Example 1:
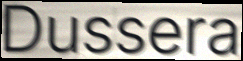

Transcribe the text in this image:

Dussera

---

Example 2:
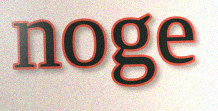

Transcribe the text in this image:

noge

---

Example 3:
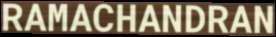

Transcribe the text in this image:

RAMACHANDRAN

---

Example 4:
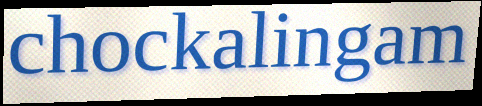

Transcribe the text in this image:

chockalingam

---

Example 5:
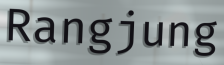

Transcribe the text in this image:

Rangjung